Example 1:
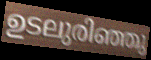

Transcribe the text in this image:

ഉടലുരിഞ്ഞു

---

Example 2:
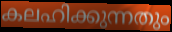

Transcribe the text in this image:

കലഹിക്കുന്നതും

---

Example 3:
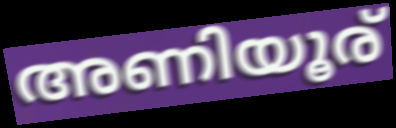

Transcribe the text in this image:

അണിയൂര്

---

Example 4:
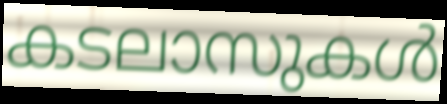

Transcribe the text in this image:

കടലാസുകൾ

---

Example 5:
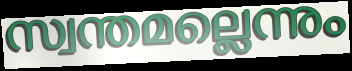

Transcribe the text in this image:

സ്വന്തമല്ലെന്നും